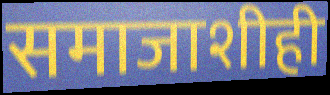
समाजाशीही